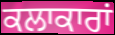
ਕਲਾਕਾਰਾਂ